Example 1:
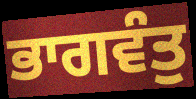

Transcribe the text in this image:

ਭਾਗਵੰਤੁ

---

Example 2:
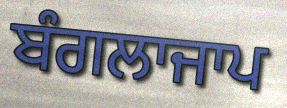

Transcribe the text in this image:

ਬੰਗਲਾਜਾਪ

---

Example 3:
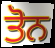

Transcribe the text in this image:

ਤੋਨ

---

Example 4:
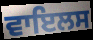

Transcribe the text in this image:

ਵਾਇਲਸ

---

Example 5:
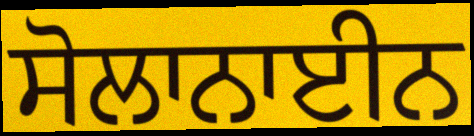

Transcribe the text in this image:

ਸੋਲਾਨਾਈਨ